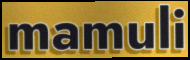
mamuli